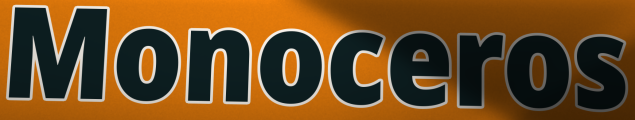
Monoceros